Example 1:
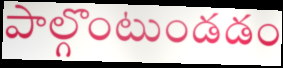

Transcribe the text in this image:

పాల్గొంటుండడం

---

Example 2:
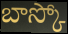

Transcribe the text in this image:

బాస్కో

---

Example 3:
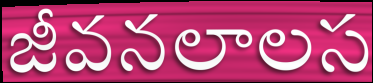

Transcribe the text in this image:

జీవనలాలస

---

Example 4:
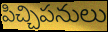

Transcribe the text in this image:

పిచ్చిపనులు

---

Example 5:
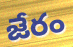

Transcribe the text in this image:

జేరం